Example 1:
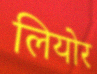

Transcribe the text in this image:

लियोर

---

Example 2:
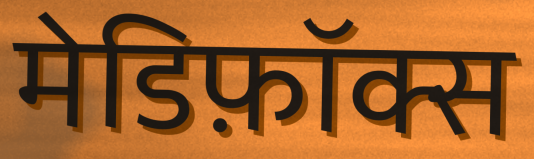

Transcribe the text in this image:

मेडिफ़ॉक्स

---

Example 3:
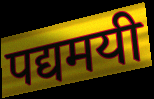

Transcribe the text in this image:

पद्यमयी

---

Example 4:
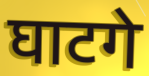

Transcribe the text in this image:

घाटगे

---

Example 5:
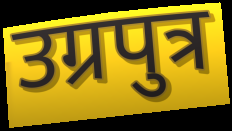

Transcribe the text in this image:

उग्रपुत्र